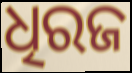
ଧିରଜ